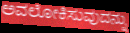
ಅವಲೋಕಿಸುವುದನ್ನು